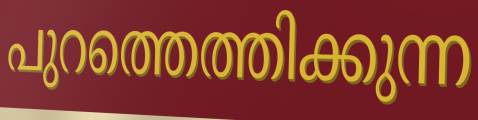
പുറത്തെത്തിക്കുന്ന